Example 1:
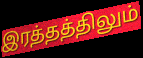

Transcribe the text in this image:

இரத்தத்திலும்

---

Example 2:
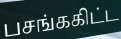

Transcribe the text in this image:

பசங்ககிட்ட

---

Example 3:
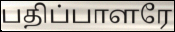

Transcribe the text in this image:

பதிப்பாளரே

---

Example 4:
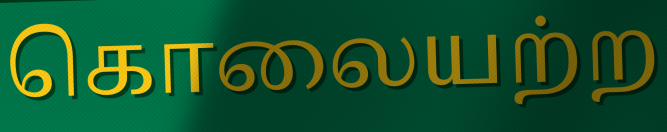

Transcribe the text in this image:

கொலையற்ற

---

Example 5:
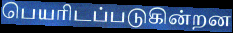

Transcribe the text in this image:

பெயரிடப்படுகின்றன